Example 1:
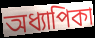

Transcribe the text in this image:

অধ্যাপিকা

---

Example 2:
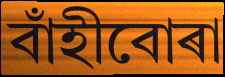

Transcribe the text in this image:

বাঁহীবোৰা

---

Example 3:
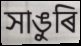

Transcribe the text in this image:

সাঙুৰি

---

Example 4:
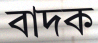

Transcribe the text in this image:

বাদক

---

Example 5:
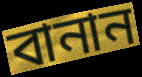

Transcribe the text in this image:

বানান